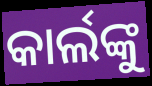
କାର୍ଲଙ୍କୁ